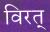
विरत्